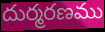
దుర్మరణము